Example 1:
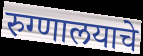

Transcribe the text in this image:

रुग्णालयाचे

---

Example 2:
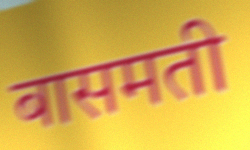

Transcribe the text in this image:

बासमती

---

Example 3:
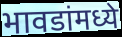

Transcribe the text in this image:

भावडांमध्ये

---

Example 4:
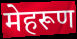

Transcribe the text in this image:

मेहरूण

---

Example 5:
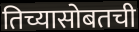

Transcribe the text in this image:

तिच्यासोबतची